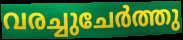
വരച്ചുചേർത്തു